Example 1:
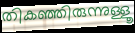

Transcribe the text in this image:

തികഞ്ഞിരുന്നുള്ളൂ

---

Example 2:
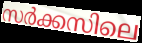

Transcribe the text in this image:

സർക്കസിലെ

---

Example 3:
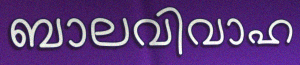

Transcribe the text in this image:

ബാലവിവാഹ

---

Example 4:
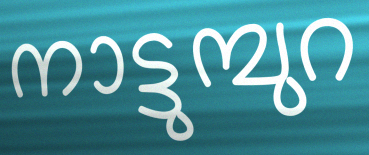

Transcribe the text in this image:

നാട്ടുമ്പുറ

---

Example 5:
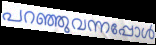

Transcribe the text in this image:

പറഞ്ഞുവന്നപ്പോൾ